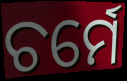
ଚର୍ମେ